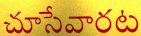
చూసేవారట